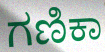
ಗಣಿಕಾ